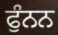
ਫੁੰਨਨ